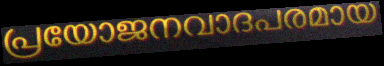
പ്രയോജനവാദപരമായ